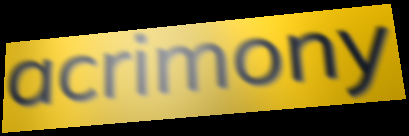
acrimony